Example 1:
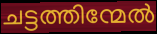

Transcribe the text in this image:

ചട്ടത്തിന്മേൽ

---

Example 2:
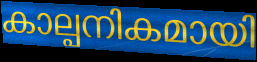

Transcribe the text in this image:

കാല്പനികമായി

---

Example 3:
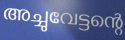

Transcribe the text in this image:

അച്ചുവേട്ടന്റെ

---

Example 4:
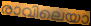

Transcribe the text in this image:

രാവിലെയാ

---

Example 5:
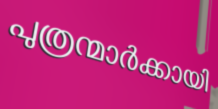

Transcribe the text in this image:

പുത്രന്മാർക്കായി